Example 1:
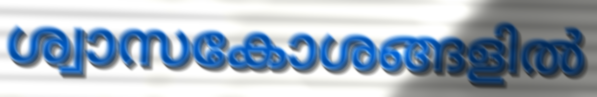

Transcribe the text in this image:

ശ്വാസകോശങ്ങളിൽ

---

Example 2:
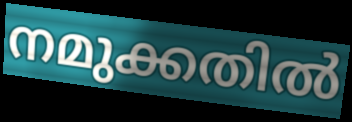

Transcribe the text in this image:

നമുക്കതിൽ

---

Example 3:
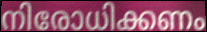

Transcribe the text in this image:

നിരോധിക്കണം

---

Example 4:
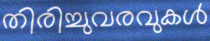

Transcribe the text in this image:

തിരിച്ചുവരവുകൾ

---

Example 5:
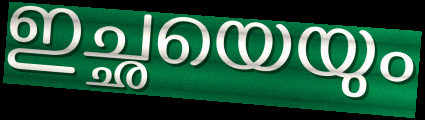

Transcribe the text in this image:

ഇച്ഛയെയും